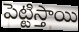
పెట్టిస్తాయి